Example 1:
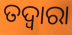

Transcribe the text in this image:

ତଦ୍ବାରା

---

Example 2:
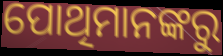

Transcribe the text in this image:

ପୋଥିମାନଙ୍କରୁ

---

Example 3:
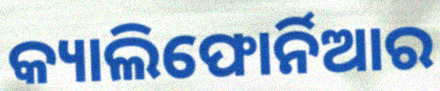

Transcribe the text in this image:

କ୍ୟାଲିଫୋର୍ନିଆର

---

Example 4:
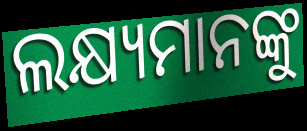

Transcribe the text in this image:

ଲକ୍ଷ୍ୟମାନଙ୍କୁ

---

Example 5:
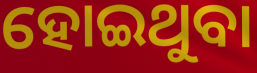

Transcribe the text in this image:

ହୋଇଥୁବା